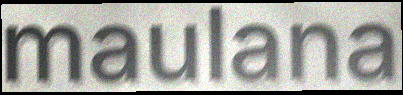
maulana